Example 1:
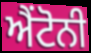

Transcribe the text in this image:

ਐਂਟੋਨੀ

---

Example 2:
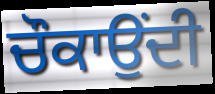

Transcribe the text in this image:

ਚੌਕਾਉਂਦੀ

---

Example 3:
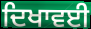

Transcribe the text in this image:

ਦਿਖਾਵਈ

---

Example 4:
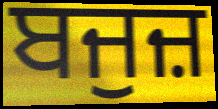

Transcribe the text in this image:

ਬਜੁਜ਼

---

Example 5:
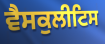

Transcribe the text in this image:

ਵੈਸਕੁਲੀਟਿਸ